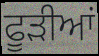
ਫੂੜੀਆਂ